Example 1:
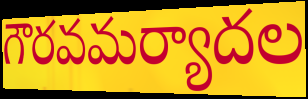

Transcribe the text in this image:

గౌరవమర్యాదల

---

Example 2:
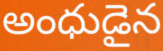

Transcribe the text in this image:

అంధుడైన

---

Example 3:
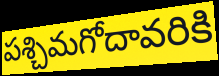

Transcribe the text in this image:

పశ్చిమగోదావరికి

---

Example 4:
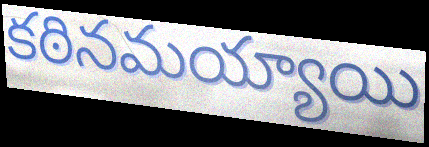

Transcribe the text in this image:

కఠినమయ్యాయి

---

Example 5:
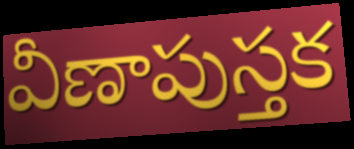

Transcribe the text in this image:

వీణాపుస్తక